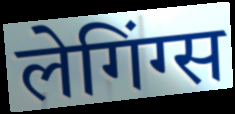
लेगिंग्स